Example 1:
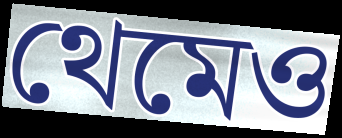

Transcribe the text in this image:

থেমেও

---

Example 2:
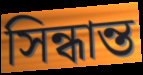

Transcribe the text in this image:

সিন্ধান্ত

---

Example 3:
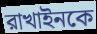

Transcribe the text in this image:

রাখাইনকে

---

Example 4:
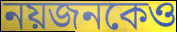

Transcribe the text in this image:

নয়জনকেও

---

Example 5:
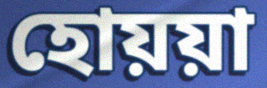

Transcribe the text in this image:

হোয়য়া